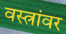
वस्त्रांवर